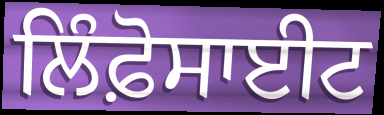
ਲਿੰਫ਼ੋਸਾਈਟ